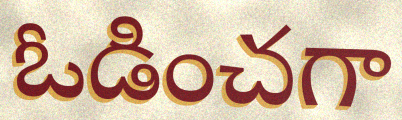
ఓడించగా